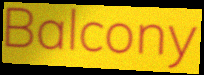
Balcony